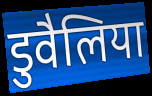
डुवैलिया